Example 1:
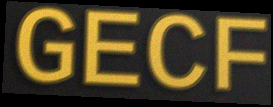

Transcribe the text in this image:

GECF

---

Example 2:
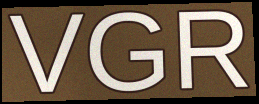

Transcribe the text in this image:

VGR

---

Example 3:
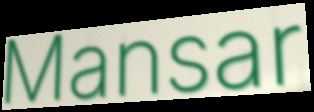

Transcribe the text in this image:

Mansar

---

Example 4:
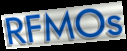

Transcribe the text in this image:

RFMOs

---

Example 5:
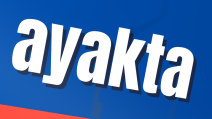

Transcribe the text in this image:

ayakta